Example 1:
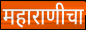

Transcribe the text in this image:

महाराणीचा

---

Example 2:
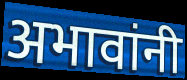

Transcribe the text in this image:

अभावांनी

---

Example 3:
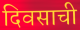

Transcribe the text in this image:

दिवसाची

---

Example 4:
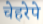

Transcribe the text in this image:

चेहरेपे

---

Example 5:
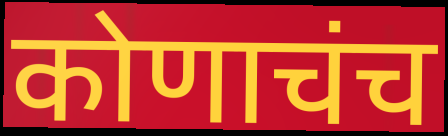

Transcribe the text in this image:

कोणाचंच